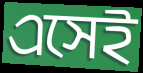
এসেই